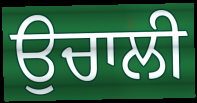
ਉਚਾਲੀ